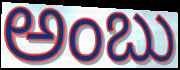
అంబు